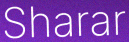
Sharar